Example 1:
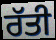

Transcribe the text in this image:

ਰੱਤੀ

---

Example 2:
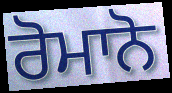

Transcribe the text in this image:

ਰੋਮਾਨੋ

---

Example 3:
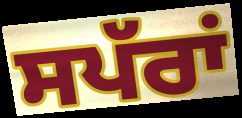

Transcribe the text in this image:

ਸਪੱਰਾਂ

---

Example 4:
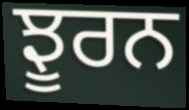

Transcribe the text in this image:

ਝੂਰਨ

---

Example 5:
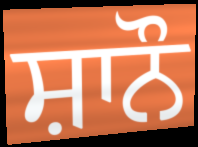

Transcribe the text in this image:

ਸ਼ਾਨੌ